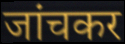
जांचकर